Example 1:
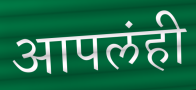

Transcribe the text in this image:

आपलंही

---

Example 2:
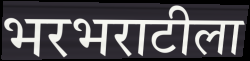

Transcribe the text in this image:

भरभराटीला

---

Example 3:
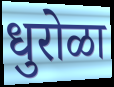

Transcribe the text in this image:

धुरोळा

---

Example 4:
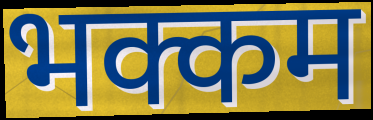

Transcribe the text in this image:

भक्‍कम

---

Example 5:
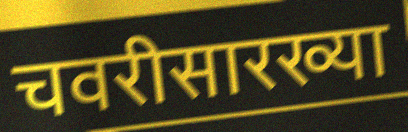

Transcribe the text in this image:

चवरीसारख्या